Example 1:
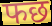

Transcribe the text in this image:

फछ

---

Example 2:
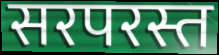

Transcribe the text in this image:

सरपरस्त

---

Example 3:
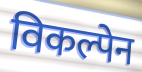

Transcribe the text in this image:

विकल्पेन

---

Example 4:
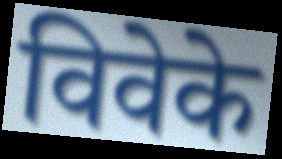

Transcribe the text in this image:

विवेके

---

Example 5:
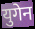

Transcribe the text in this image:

युगेन